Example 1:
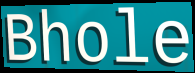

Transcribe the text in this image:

Bhole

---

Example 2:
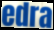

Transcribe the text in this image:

edra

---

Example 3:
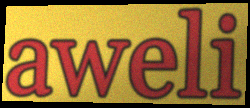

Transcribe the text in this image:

aweli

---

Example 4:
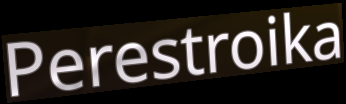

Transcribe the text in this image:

Perestroika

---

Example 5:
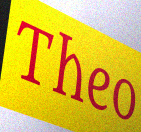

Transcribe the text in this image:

Theo